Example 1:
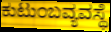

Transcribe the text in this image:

ಕುಟುಂಬವ್ಯವಸ್ಥೆ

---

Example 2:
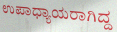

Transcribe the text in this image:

ಉಪಾಧ್ಯಾಯರಾಗಿದ್ದ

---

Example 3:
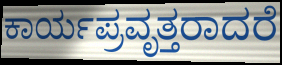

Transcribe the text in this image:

ಕಾರ್ಯಪ್ರವೃತ್ತರಾದರೆ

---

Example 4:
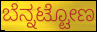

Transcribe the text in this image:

ಬೆನ್ನಟ್ಟೋಣ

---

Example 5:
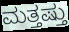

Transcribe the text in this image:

ಮತ್ತಷ್ತು